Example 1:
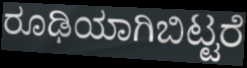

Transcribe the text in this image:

ರೂಢಿಯಾಗಿಬಿಟ್ಟರೆ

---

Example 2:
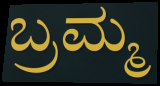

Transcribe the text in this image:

ಬ್ರಮ್ಮ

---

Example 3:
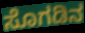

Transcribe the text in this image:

ಸೊಗಡಿನ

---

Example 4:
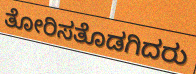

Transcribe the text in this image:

ತೋರಿಸತೊಡಗಿದರು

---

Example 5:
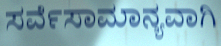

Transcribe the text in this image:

ಸರ್ವೆಸಾಮಾನ್ಯವಾಗಿ